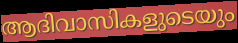
ആദിവാസികളുടെയും